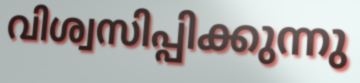
വിശ്വസിപ്പിക്കുന്നു